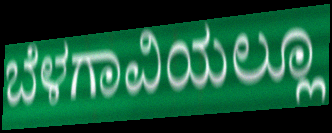
ಬೆಳಗಾವಿಯಲ್ಲೂ